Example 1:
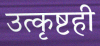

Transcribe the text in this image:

उत्कृष्टही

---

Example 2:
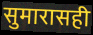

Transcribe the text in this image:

सुमारासही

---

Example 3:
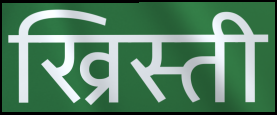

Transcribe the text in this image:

ख्रिस्ती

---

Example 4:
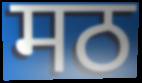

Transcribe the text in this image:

मठ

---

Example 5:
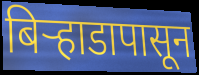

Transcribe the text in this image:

बिऱ्हाडापासून